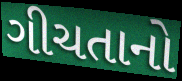
ગીચતાનો